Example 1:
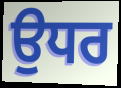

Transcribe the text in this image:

ਉਧਰ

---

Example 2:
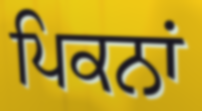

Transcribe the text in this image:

ਪਿਕਨਾਂ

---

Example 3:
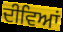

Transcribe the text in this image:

ਦੀਵਿਆਂ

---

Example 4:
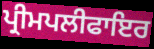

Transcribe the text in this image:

ਪ੍ਰੀਮਪਲੀਫਾਇਰ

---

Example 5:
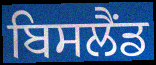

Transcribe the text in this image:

ਬਿਸਲੈਂਡ